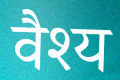
वैश्य